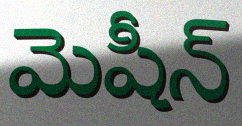
మెషీన్